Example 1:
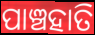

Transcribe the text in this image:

ପାଞ୍ଚହାତି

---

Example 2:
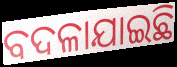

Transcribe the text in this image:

ବଦଳାଯାଇଛି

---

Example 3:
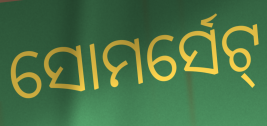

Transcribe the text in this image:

ସୋମର୍ସେଟ୍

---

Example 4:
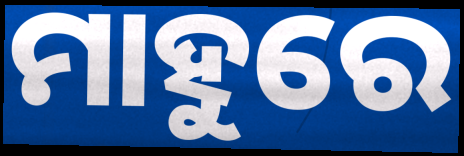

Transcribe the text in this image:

ମାହୁରେ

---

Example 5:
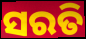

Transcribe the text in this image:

ସରତି